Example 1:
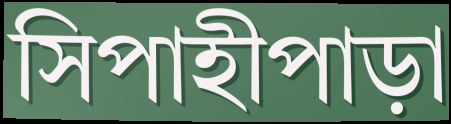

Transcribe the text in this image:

সিপাহীপাড়া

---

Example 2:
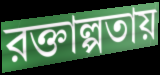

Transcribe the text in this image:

রক্তাল্পতায়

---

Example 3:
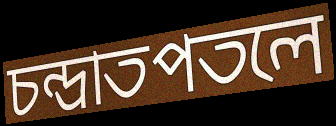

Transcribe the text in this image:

চন্দ্রাতপতলে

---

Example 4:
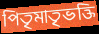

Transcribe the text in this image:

পিতৃমাতৃভক্তি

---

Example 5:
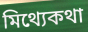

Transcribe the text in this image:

মিথ্যেকথা